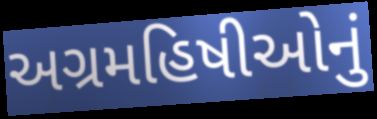
અગ્રમહિષીઓનું